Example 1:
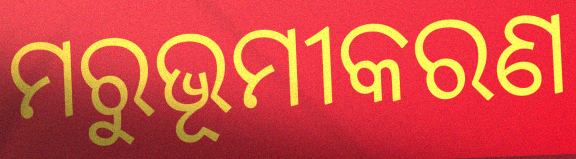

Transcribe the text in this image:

ମରୁଭୂମୀକରଣ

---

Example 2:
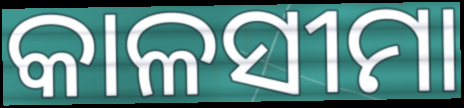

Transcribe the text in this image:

କାଳସୀମା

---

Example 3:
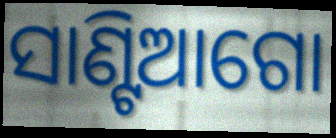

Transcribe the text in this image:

ସାଣ୍ଟିଆଗୋ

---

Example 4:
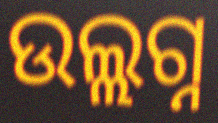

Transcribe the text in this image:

ଉଲ୍ଲଗ୍ନ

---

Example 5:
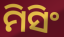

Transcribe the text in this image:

ମିସିଂ